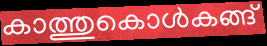
കാത്തുകൊൾകങ്ങ്